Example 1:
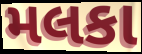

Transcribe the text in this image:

મલકા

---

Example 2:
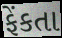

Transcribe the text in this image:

ફેંકતા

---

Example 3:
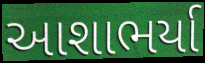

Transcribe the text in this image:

આશાભર્યા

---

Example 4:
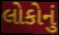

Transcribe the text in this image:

લોકોનું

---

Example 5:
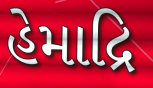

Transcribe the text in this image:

હેમાદ્રિ